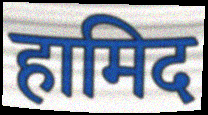
हामिद